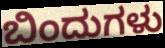
ಬಿಂದುಗಳು